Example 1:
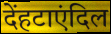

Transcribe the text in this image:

देंहटाएंदिल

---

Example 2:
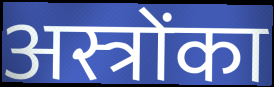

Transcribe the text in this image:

अस्त्रोंका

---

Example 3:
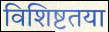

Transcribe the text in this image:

विशिष्टतया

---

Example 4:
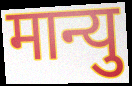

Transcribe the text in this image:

मान्यु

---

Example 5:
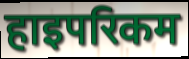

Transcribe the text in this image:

हाइपरिकम